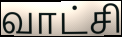
வாட்சி